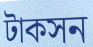
টাকসন